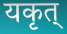
यकृत्